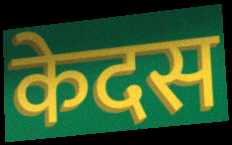
केदस